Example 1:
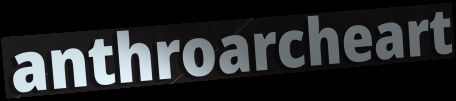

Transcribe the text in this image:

anthroarcheart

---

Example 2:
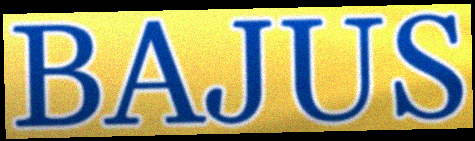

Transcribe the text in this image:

BAJUS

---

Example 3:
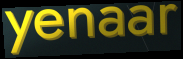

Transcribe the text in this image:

yenaar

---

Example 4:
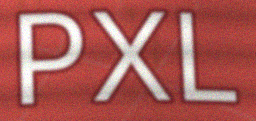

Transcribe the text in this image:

PXL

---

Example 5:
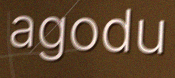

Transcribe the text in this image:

agodu